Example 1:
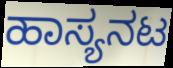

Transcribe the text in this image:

ಹಾಸ್ಯನಟ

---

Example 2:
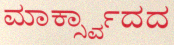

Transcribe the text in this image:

ಮಾರ್ಕ್ಸ್ವಾದದ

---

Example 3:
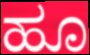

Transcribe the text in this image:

ಹೂ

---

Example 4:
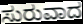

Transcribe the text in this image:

ಸುರುವಾದ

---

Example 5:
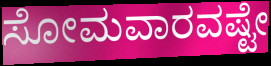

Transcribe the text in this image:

ಸೋಮವಾರವಷ್ಟೇ